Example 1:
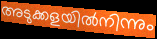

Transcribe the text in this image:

അടുക്കളയിൽനിന്നും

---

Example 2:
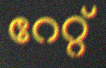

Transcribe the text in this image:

റേറ്റ്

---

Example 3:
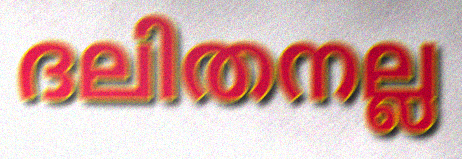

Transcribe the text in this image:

ദലിതനല്ല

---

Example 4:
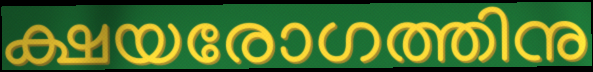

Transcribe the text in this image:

ക്ഷയരോഗത്തിനു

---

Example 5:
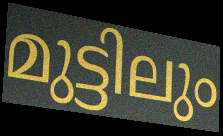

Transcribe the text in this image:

മുട്ടിലും